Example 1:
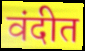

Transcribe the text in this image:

वंदीत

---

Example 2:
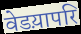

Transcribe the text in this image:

वेडय़ापरि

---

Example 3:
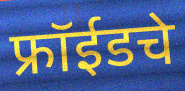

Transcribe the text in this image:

फ्रॉईडचे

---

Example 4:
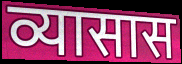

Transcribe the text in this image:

व्यासास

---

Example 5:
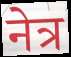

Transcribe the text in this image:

नेत्र